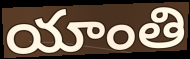
యాంతి